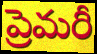
ప్రెమరీ